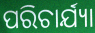
ପରିଚାର୍ଯ୍ୟା